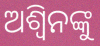
ଅଶ୍ବିନଙ୍କୁ